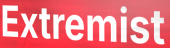
Extremist